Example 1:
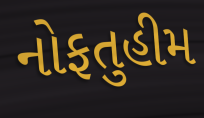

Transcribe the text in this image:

નોફતુહીમ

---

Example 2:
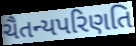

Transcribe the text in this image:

ચૈતન્યપરિણતિ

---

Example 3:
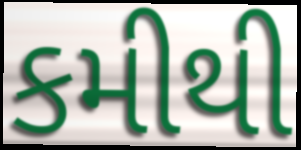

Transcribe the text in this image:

કમીથી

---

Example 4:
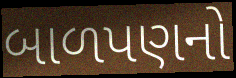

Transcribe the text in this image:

બાળપણનો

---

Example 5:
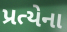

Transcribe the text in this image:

પ્રત્યેના